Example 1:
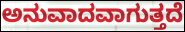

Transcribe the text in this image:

ಅನುವಾದವಾಗುತ್ತದೆ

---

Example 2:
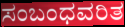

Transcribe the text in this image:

ಸಂಬಂಧವರಿತ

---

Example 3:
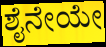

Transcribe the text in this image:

ಶೈನೇಯೇ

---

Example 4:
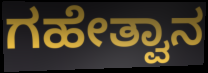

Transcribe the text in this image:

ಗಹೇತ್ವಾನ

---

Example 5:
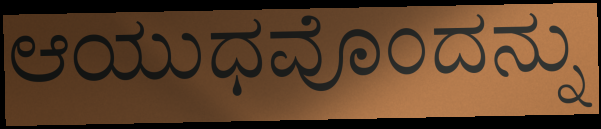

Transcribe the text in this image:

ಆಯುಧವೊಂದನ್ನು